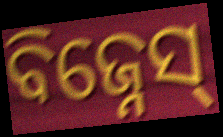
ବିଜ୍ନେସ୍